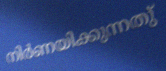
നിർണയിക്കുന്നതു്